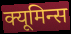
क्यूमिन्स